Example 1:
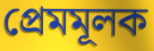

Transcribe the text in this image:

প্রেমমূলক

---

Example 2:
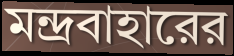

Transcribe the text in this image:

মন্দ্রবাহারের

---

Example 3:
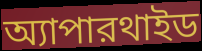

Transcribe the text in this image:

অ্যাপারথাইড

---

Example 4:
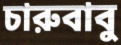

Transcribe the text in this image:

চারুবাবু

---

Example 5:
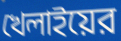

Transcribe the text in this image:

খেলাইয়ের